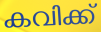
കവിക്ക്